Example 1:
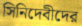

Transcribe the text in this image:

সিনিদেবীদের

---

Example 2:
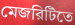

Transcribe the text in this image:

মেজরিটিতে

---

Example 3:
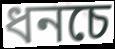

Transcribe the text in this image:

ধনচে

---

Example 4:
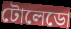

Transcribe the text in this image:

টোলেডো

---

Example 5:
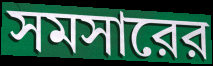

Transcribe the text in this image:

সমসারের